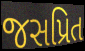
જસપ્રિત